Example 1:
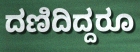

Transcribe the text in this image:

ದಣಿದಿದ್ದರೂ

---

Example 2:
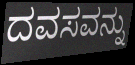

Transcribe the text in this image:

ದವಸವನ್ನು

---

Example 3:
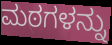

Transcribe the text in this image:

ಮಠಗಳನ್ನು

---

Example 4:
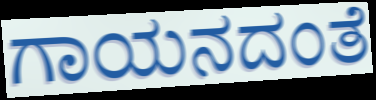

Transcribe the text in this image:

ಗಾಯನದಂತೆ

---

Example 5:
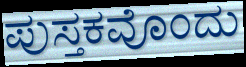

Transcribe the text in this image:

ಪುಸ್ತಕವೊಂದು